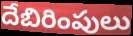
దేబిరింపులు